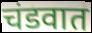
चंडवात